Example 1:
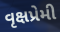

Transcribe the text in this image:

વૃક્ષપ્રેમી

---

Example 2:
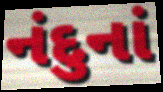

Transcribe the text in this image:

નંદુનાં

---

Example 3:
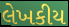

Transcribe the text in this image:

લેખકીય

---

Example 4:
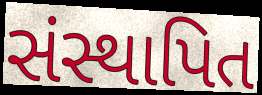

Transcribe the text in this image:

સંસ્થાપિત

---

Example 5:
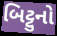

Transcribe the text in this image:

બિટ્ટુનો